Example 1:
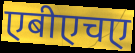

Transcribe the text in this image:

एबीएचए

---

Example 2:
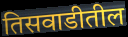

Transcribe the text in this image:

तिसवाडीतील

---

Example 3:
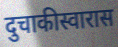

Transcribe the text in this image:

दुचाकीस्वारास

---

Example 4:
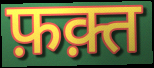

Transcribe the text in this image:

फ़क़्त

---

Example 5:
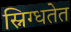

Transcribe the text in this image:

स्निग्धतेत